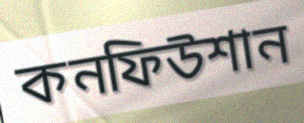
কনফিউশান